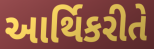
આર્થિકરીતે